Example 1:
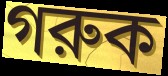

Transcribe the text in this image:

গরুক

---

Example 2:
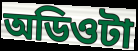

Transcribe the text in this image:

অডিওটা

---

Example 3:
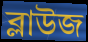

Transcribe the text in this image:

ব্লাউজ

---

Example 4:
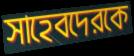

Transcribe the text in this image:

সাহেবদেরকে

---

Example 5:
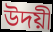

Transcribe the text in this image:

উদয়ী